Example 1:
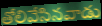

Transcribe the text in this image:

తోలివేసినవాడు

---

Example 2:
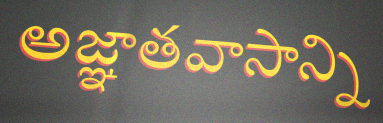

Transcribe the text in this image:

అజ్ఞాతవాసాన్ని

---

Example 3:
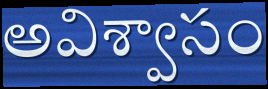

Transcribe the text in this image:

అవిశ్వాసం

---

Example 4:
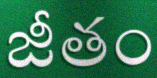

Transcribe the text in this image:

జీతం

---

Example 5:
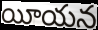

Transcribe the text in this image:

యీయన